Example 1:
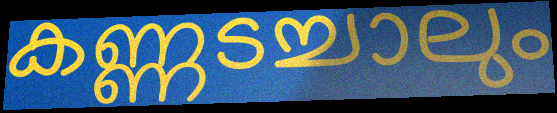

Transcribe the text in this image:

കണ്ണടച്ചാലും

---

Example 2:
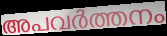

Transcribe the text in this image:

അപവർത്തനം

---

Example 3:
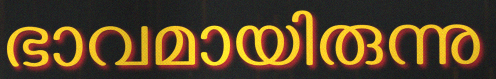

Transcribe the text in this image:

ഭാവമായിരുന്നു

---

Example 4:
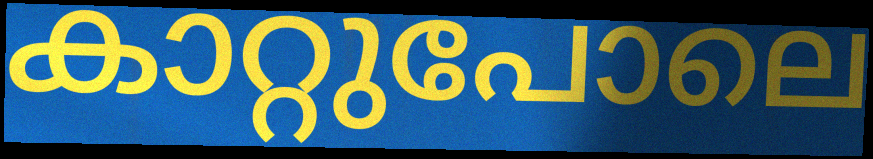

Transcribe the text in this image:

കാറ്റുപോലെ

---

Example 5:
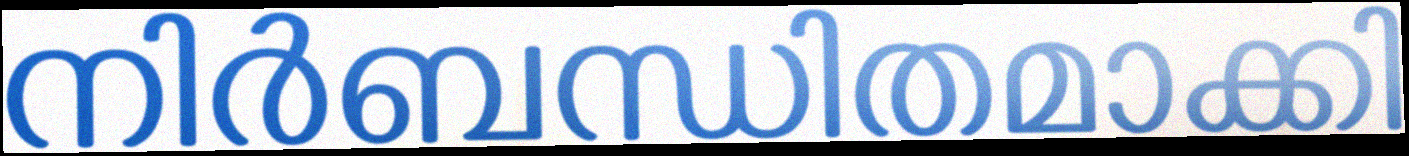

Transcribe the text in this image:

നിർബന്ധിതമാക്കി